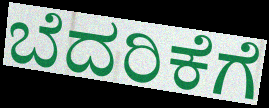
ಬೆದರಿಕೆಗೆ